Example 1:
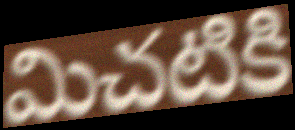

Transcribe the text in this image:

మిచటికి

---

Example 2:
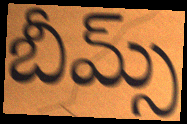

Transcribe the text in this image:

బీమ్స్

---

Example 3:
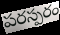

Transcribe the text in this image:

పరస్పరం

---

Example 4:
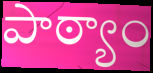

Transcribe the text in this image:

పాఠ్యాం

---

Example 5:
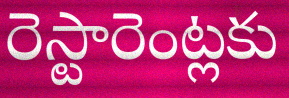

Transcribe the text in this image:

రెస్టారెంట్లకు